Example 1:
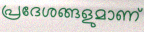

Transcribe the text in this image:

പ്രദേശങ്ങളുമാണ്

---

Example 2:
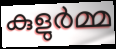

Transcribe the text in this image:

കുളുർമ്മ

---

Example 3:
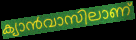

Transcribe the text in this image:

ക്യാൻവാസിലാണ്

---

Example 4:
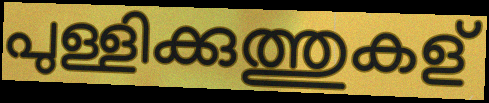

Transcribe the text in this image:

പുള്ളിക്കുത്തുകള്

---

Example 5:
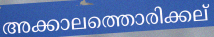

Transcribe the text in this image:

അക്കാലത്തൊരിക്കല്